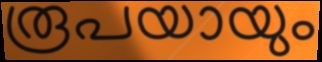
രൂപയായും